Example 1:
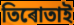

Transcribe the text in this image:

তিৰোতাই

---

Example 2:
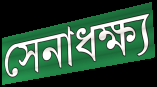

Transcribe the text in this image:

সেনাধক্ষ্য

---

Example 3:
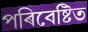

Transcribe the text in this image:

পৰিবেষ্টিত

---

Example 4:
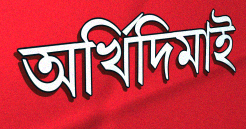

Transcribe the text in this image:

অৰ্খিদিমাই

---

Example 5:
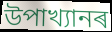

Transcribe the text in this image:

উপাখ্যানৰ